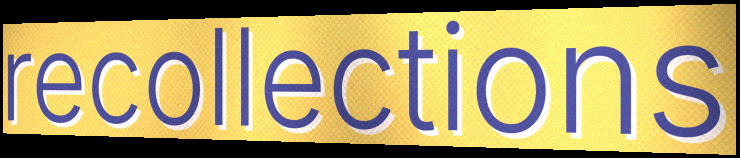
recollections